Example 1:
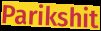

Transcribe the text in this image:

Parikshit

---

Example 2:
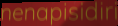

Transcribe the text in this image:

nenapisidiri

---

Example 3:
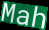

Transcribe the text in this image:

Mah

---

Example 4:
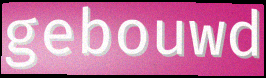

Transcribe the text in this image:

gebouwd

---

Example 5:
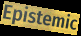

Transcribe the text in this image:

Epistemic